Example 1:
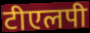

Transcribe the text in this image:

टीएलपी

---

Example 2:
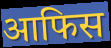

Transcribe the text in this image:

आफिस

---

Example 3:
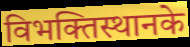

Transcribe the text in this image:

विभक्तिस्थानके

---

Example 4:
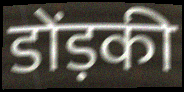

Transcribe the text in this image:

डोंड़की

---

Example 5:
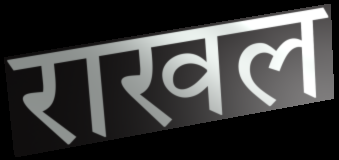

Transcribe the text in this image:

राखल